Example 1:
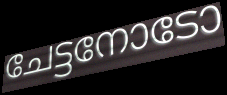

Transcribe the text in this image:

ചേട്ടനോടോ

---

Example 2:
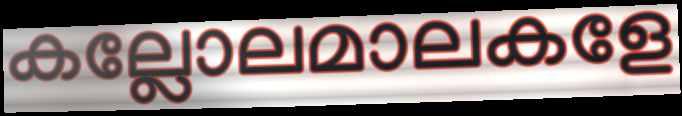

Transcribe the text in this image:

കല്ലോലമാലകളേ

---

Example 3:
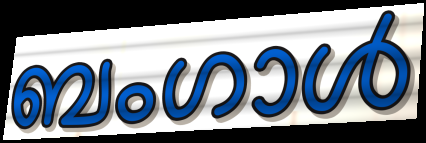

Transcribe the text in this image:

ബംഗാൾ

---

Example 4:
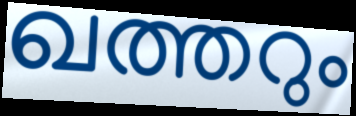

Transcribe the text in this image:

ഖത്തറും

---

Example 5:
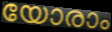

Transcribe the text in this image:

യോരാം